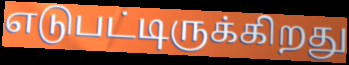
எடுபட்டிருக்கிறது